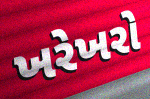
ખરેખરો